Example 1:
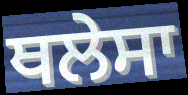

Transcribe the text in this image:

ਥਲੇਸਾ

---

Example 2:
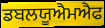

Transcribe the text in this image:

ਡਬਲਯੂਐਮਐਫ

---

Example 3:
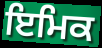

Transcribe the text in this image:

ਇਮਿਕ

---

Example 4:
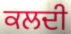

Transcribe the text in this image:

ਕਲਦੀ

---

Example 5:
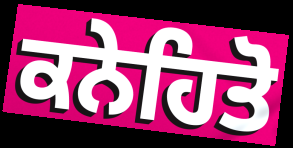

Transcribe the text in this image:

ਕਨੇਹਿਤੋ